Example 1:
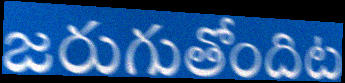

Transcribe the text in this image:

జరుగుతోందిట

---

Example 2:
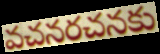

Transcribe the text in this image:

వచనరచనకు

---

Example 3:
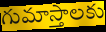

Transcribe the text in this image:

గుమాస్తాలకు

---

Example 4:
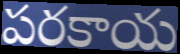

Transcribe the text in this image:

పరకాయ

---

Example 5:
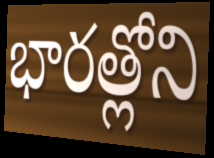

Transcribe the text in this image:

భారత్లోని